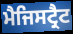
ਮੈਜਿਸਟ੍ਰੈਟ